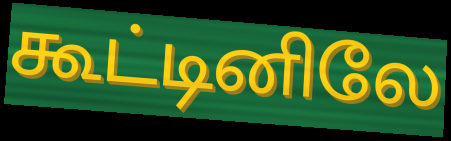
கூட்டினிலே